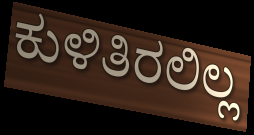
ಕುಳಿತಿರಲಿಲ್ಲ